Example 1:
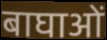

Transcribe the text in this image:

बाघाओं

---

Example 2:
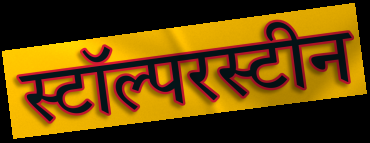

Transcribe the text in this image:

स्टॉल्परस्टीन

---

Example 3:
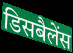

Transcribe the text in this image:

डिसबैलेंस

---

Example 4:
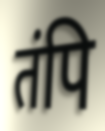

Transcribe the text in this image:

तंपि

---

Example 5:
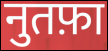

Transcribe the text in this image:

नुतफ़ा